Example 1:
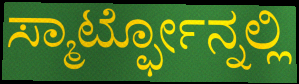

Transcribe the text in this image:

ಸ್ಮಾರ್ಟ್ಫೋನ್ನಲ್ಲಿ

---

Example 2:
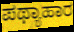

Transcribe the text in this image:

ಪಥ್ಯಾಹಾರ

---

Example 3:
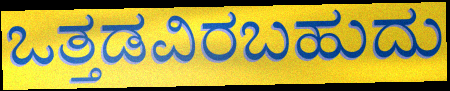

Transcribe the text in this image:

ಒತ್ತಡವಿರಬಹುದು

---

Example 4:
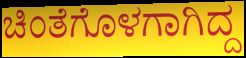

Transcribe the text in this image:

ಚಿಂತೆಗೊಳಗಾಗಿದ್ದ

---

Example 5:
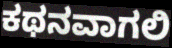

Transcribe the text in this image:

ಕಥನವಾಗಲಿ